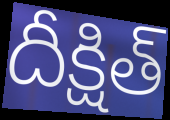
దీక్షిత్